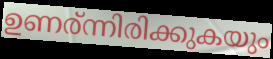
ഉണര്ന്നിരിക്കുകയും